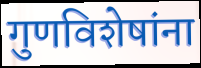
गुणविशेषांना